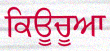
ਕਿਊਚੂਆ